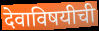
देवाविषयीची